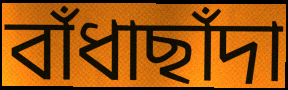
বাঁধাছাঁদা